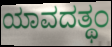
ಯಾವದತ್ಥಂ